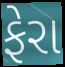
ફેરા